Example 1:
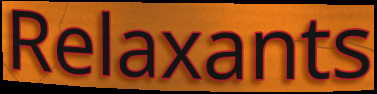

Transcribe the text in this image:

Relaxants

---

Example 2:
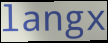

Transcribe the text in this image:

langx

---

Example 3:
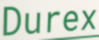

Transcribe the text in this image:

Durex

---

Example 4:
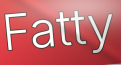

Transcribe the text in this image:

Fatty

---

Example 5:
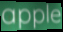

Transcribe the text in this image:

apple